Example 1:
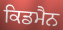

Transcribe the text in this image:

ਕਿਡਮੈਨ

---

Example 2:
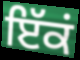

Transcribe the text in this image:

ਇੱਕਂ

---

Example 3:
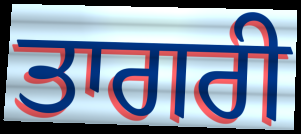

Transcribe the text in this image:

ਤਾਗਰੀ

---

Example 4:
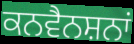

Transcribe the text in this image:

ਕਨਵੈਨਸ਼ਨਾਂ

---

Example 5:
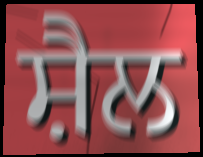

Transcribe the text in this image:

ਸ਼ੈਲ